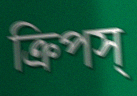
ক্রিপস্